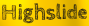
Highslide